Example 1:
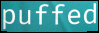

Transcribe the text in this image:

puffed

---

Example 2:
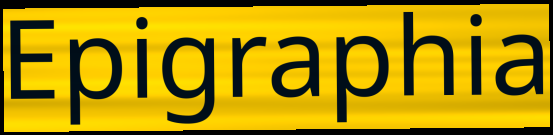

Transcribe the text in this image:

Epigraphia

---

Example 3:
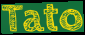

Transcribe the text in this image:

Tato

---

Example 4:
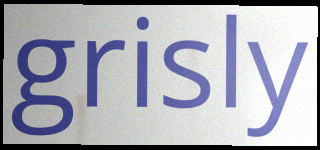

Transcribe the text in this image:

grisly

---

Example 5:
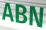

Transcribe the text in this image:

ABN